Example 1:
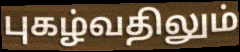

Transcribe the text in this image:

புகழ்வதிலும்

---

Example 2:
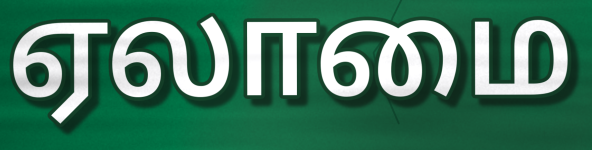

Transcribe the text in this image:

ஏலாமை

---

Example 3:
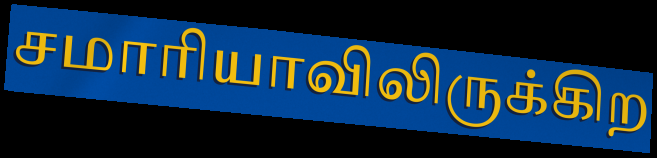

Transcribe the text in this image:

சமாரியாவிலிருக்கிற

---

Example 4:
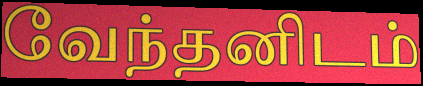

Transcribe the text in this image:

வேந்தனிடம்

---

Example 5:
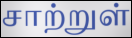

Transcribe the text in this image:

சாற்றுள்